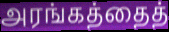
அரங்கத்தைத்